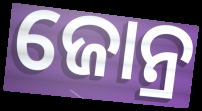
ଜୋନ୍ର